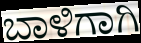
ಬಾಳಿಗಾಗಿ